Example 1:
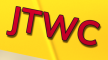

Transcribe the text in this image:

JTWC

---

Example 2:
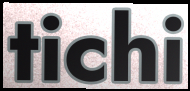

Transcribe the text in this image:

tichi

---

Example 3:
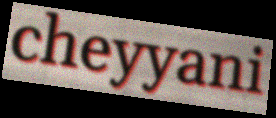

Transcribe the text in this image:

cheyyani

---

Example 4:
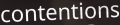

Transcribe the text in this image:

contentions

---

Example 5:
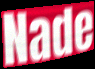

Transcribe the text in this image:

Nade